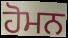
ਹੋਮਨ